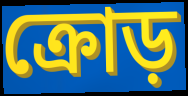
ক্রোড়